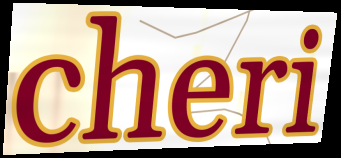
cheri